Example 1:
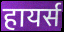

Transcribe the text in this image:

हायर्स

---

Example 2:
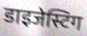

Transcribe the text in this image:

डाइजेस्टिंग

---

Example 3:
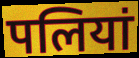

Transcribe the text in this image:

पलियां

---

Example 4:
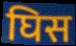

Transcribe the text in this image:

घिस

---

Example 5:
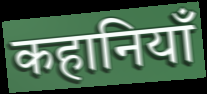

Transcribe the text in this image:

कहानियाँ